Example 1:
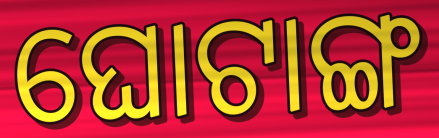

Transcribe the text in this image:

ଘୋଟାଙ୍ଗ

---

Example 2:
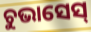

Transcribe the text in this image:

ଚୁଭାସେସ୍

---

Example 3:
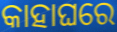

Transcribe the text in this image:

କାହାଘରେ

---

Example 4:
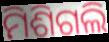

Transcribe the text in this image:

ମିଶିଗଲି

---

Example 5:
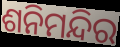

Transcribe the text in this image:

ଶନିମନ୍ଦିର